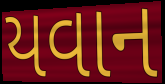
યવાન